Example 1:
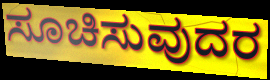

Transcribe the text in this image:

ಸೂಚಿಸುವುದರ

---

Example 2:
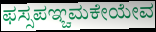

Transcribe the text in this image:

ಫಸ್ಸಪಞ್ಚಮಕೇಯೇವ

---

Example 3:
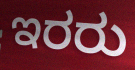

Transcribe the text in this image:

ಇರರು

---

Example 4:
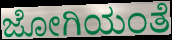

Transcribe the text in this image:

ಜೋಗಿಯಂತೆ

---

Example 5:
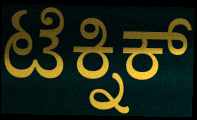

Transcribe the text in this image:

ಟೆಕ್ನಿಕ್